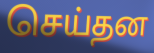
செய்தன